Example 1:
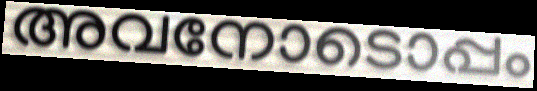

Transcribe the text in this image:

അവനോടൊപ്പം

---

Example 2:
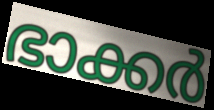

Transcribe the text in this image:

ഭാക്കർ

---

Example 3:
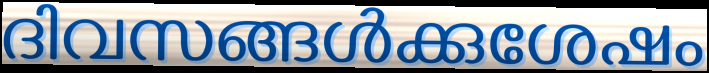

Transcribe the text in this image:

ദിവസങ്ങൾക്കുശേഷം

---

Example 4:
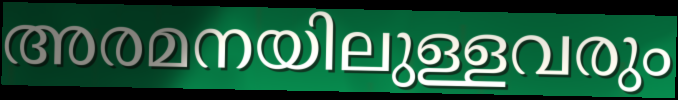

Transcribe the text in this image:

അരമനയിലുള്ളവരും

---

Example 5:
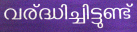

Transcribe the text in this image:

വര്ദ്ധിച്ചിട്ടുണ്ട്